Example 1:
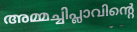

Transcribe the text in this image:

അമ്മച്ചിപ്ലാവിന്റെ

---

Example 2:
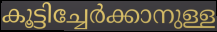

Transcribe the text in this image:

കൂട്ടിച്ചേർക്കാനുള്ള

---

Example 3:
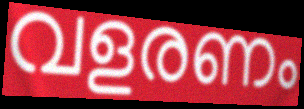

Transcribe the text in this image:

വളരണം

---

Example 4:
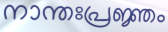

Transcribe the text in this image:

നാന്തഃപ്രജ്ഞം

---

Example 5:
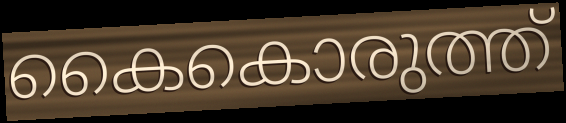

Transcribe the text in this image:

കൈകൊരുത്ത്